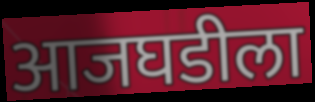
आजघडीला